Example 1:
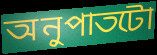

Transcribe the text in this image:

অনুপাতটো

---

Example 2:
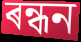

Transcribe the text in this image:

ৰন্ধন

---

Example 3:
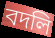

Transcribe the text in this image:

বদলি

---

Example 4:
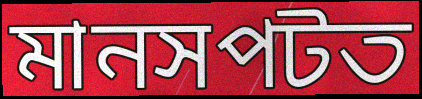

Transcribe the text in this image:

মানসপটত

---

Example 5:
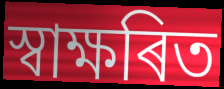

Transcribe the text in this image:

স্বাক্ষৰিত